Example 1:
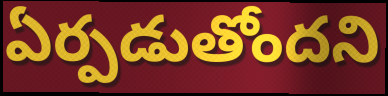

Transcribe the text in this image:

ఏర్పడుతోందని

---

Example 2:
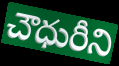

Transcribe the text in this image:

చౌధురీని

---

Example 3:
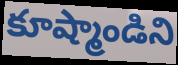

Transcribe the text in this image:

కూష్మాండిని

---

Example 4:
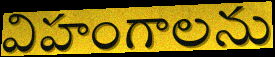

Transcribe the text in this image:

విహంగాలను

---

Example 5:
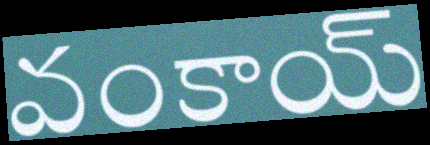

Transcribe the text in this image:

వంకాయ్